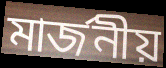
মার্জনীয়